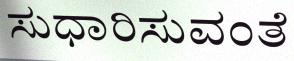
ಸುಧಾರಿಸುವಂತೆ